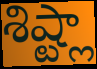
శిష్ట్లా